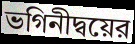
ভগিনীদ্বয়ের